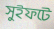
সুইফটে